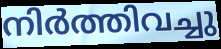
നിർത്തിവച്ചു